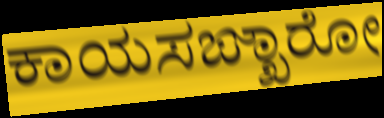
ಕಾಯಸಙ್ಖಾರೋ